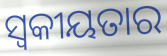
ସ୍ୱକୀୟତାର